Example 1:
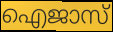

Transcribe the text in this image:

ഐജാസ്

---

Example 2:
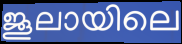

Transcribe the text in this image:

ജൂലായിലെ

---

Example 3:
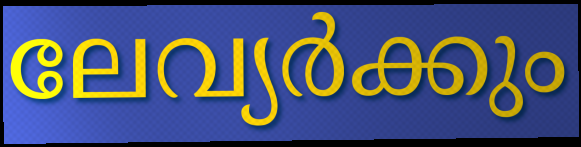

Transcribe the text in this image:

ലേവ്യർക്കും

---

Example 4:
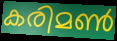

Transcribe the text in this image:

കരിമൺ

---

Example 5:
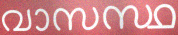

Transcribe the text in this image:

വാസസ്ഥ